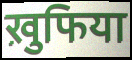
ख़ुफिया